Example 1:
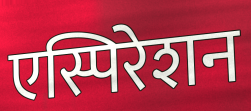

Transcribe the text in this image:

एस्पिरेशन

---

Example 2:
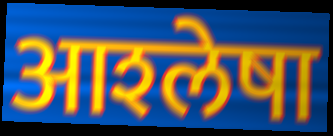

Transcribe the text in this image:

आश्‍लेषा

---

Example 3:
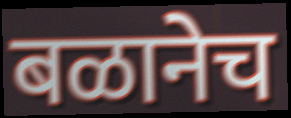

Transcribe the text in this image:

बळानेच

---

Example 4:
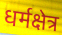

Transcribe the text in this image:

धर्मक्षेत्र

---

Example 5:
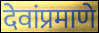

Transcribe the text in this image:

देवांप्रमाणे